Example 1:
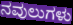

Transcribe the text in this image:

ನವುಲುಗಳು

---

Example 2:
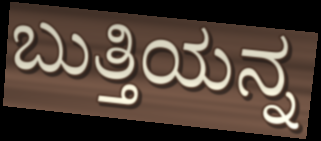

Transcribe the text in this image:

ಬುತ್ತಿಯನ್ನ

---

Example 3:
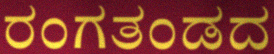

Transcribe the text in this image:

ರಂಗತಂಡದ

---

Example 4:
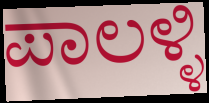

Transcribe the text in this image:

ಪಾಲಳ್ಳಿ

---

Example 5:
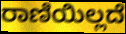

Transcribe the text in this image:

ರಾಣಿಯಿಲ್ಲದೆ